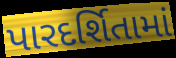
પારદર્શિતામાં